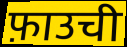
फ़ाउची